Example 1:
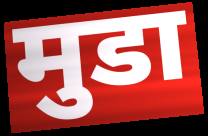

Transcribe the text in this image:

मुडा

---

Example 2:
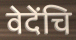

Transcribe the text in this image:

वेदेंचि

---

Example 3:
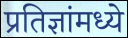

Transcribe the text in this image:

प्रतिज्ञांमध्ये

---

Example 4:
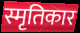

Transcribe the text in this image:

स्मृतिकार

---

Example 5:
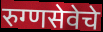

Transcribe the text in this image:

रुग्णसेवेचे